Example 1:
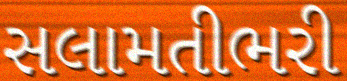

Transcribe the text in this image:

સલામતીભરી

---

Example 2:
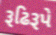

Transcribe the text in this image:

રૂઢિરૂપે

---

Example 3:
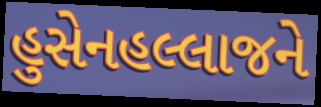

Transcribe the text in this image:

હુસેનહલ્લાજને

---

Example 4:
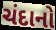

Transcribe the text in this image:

ચંદાનો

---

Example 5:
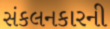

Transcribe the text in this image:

સંકલનકારની